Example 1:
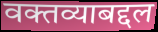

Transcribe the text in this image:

वक्तव्याबद्दल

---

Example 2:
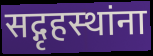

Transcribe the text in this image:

सद्गृहस्थांना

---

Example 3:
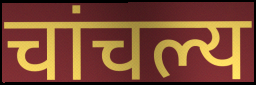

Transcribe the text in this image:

चांचल्य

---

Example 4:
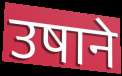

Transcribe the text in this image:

उषाने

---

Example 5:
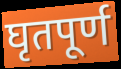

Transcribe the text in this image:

घृतपूर्ण